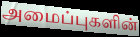
அமைப்புகளின்